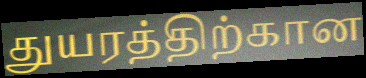
துயரத்திற்கான